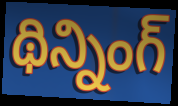
థిన్నింగ్